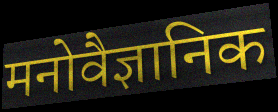
मनोवैज्ञानिक